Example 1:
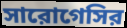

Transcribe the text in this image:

সারোগেসির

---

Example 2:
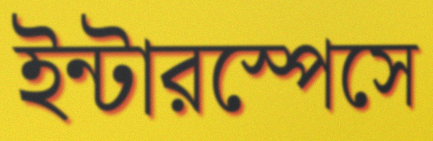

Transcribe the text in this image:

ইন্টারস্পেসে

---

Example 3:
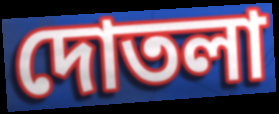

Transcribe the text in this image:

দোতলা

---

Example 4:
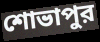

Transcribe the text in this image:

শোভাপুর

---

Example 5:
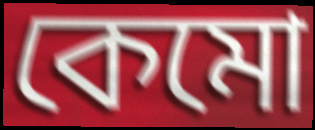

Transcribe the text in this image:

কেমো